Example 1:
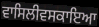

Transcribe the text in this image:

ਵਾਸਿਲੀਵਸਕਾਇਆ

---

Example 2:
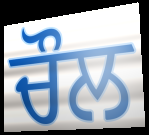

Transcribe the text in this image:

ਚੌਲ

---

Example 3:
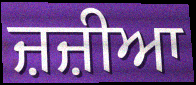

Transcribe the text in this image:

ਜ਼ਜ਼ੀਆ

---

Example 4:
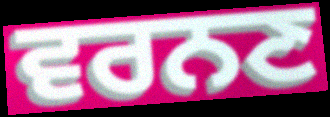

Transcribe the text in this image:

ਵਰਨਣ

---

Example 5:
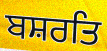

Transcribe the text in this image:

ਬਸ਼ਰਤਿ